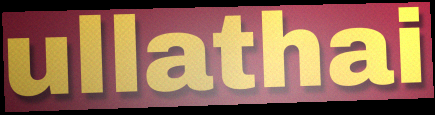
ullathai